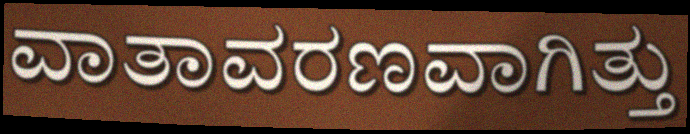
ವಾತಾವರಣವಾಗಿತ್ತು